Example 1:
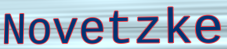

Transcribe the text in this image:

Novetzke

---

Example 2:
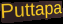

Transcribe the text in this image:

Puttapa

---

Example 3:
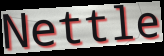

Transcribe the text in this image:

Nettle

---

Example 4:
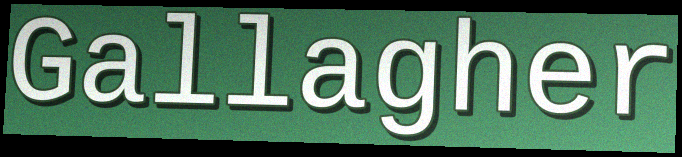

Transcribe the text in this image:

Gallagher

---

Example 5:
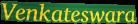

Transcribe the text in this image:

Venkateswara